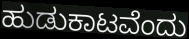
ಹುಡುಕಾಟವೆಂದು